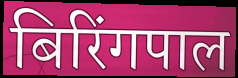
बिरिंगपाल